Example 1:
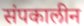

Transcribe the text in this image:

संपकालीन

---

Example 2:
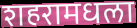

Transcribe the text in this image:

शहरामधला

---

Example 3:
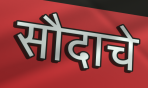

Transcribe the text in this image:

सौदाचे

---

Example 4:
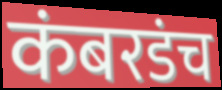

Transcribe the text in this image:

कंबरडंच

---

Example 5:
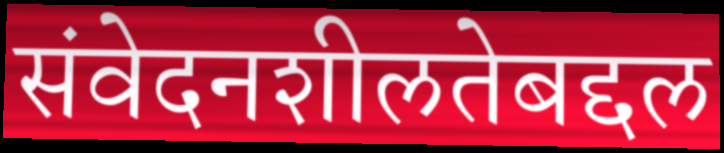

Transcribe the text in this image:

संवेदनशीलतेबद्दल